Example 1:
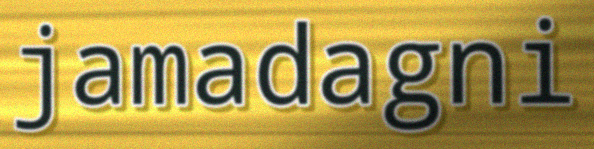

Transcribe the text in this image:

jamadagni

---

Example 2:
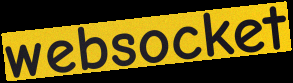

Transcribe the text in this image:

websocket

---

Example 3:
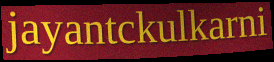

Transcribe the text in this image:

jayantckulkarni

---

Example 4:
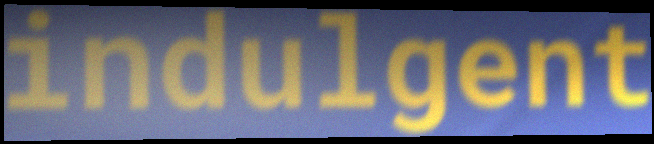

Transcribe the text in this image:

indulgent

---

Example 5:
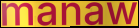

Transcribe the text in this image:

manaw